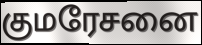
குமரேசனை